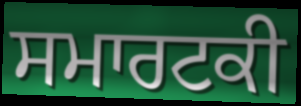
ਸਮਾਰਟਕੀ